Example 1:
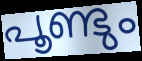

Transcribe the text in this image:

പൂണ്ടും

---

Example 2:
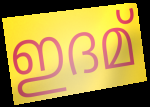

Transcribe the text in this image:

ഇദമ്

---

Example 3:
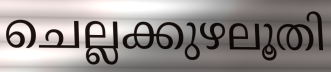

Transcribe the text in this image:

ചെല്ലക്കുഴലൂതി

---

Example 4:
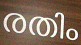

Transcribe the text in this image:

രതിം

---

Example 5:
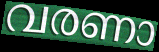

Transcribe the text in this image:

വരണാ